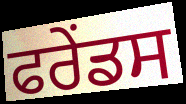
ਫਰੇਂਡਸ